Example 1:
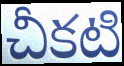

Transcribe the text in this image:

చీకటి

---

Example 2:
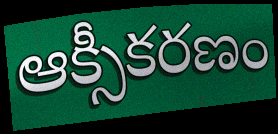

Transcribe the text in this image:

ఆక్సీకరణం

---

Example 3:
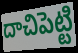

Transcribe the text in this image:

దాచిపెట్టి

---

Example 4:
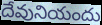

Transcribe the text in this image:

దేవునియందు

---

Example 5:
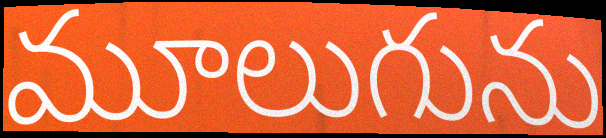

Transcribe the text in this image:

మూలుగును